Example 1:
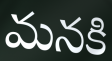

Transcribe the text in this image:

మనకి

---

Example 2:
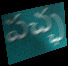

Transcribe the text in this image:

పచ్ఛ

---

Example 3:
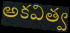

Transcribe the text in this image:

అకవిత్వ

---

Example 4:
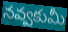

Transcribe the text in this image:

నవ్వకుమీ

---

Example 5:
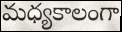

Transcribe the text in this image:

మధ్యకాలంగా